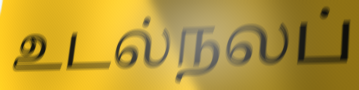
உடல்நலப்